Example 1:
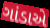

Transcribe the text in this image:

ગાંડાએ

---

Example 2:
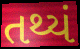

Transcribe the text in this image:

તથ્યં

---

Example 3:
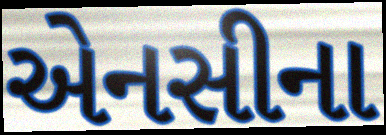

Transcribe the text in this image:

એનસીના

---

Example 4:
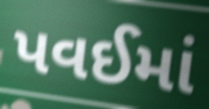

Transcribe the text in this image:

પવઈમાં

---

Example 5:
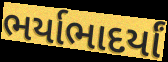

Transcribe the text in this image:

ભર્યાભાદર્યાં